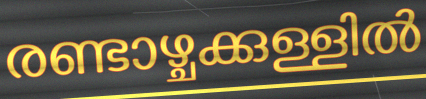
രണ്ടാഴ്ചക്കുള്ളിൽ